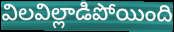
విలవిల్లాడిపోయింది